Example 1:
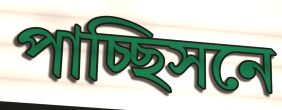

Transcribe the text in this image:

পাচ্ছিসনে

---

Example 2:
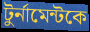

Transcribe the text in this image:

টুর্নামেন্টকে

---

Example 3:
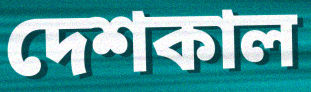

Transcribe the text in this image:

দেশকাল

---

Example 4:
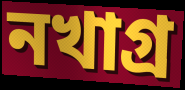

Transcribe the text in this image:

নখাগ্র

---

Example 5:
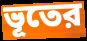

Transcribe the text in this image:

ভূতের